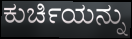
ಕುರ್ಚಿಯನ್ನು